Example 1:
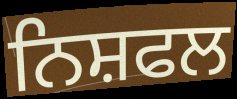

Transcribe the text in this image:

ਨਿਸ਼ਫਲ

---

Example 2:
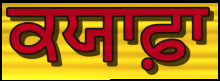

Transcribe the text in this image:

ਕਯਾਫ਼ਾ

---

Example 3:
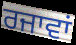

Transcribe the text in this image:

ਰਜਾਵਾਂ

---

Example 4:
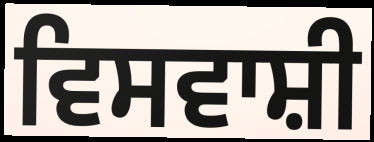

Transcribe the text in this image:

ਵਿਸਵਾਸ਼ੀ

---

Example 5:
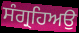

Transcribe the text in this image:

ਸੰਗ੍ਰਹਿਅਉ